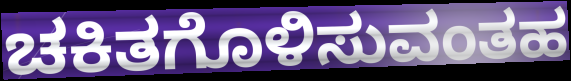
ಚಕಿತಗೊಳಿಸುವಂತಹ